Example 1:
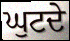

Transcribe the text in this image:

ਘੁਟਦੇ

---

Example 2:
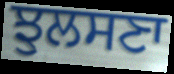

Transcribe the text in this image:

ਝੁਲਸਣਾ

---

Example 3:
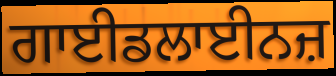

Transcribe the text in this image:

ਗਾਈਡਲਾਈਨਜ਼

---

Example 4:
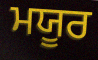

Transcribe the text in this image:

ਮਯੂਰ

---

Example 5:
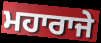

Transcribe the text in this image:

ਮਹਾਰਾਜੇ